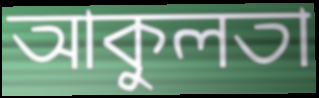
আকুলতা